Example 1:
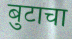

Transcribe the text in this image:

बुटाचा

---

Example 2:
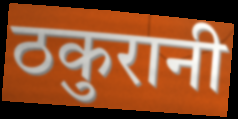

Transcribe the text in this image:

ठकुरानी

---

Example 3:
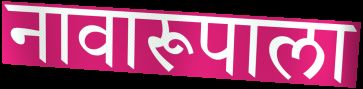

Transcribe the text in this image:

नावारूपाला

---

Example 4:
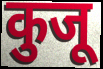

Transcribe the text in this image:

कुजू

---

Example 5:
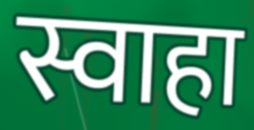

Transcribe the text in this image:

स्वाहा